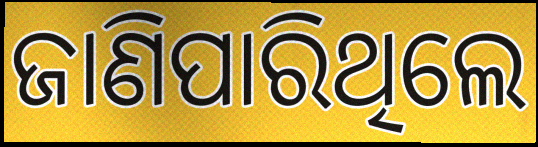
ଜାଣିପାରିଥିଲେ